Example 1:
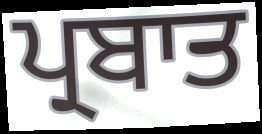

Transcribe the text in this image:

ਪ੍ਰਬਾਤ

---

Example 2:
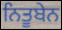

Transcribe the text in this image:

ਨਿਤੂਬੇਨ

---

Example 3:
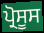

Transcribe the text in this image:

ਪ੍ਰੋਸੂਸ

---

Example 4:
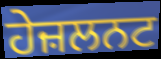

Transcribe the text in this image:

ਹੇਜ਼ਲਨਟ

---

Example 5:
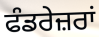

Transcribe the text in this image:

ਫੰਡਰੇਜ਼ਰਾਂ